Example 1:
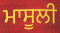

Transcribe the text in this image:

ਮਾਸੂਲੀ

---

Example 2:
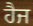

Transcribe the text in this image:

ਹੈਜ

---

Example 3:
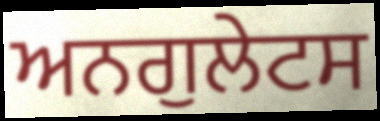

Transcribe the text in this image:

ਅਨਗੁਲੇਟਸ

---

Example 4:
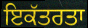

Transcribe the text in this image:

ਇਕੱਤਰਤਾ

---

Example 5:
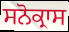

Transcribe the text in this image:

ਸਨੋਕ੍ਰਾਸ